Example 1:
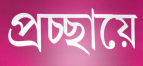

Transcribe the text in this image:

প্রচ্ছায়ে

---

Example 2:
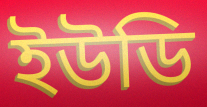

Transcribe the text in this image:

ইউডি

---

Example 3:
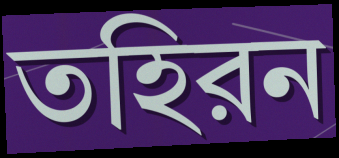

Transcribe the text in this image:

তহিরন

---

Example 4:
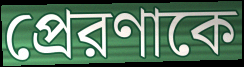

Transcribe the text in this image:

প্রেরণাকে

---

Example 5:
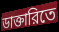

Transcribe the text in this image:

ডাক্তারিতে